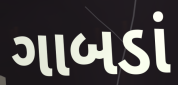
ગાબડાં